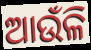
ଆଉଁଳି